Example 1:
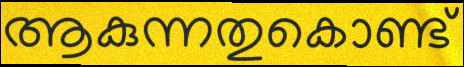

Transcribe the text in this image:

ആകുന്നതുകൊണ്ട്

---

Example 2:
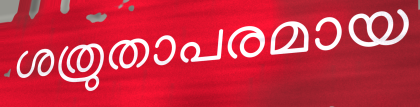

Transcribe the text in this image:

ശത്രുതാപരമായ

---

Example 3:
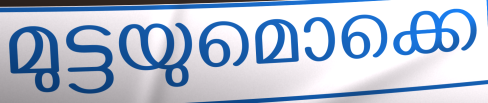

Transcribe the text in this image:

മുട്ടയുമൊക്കെ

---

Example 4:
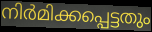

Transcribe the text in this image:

നിർമിക്കപ്പെട്ടതും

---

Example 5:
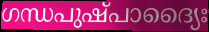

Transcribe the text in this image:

ഗന്ധപുഷ്പാദ്യൈഃ